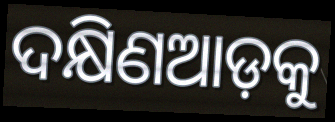
ଦକ୍ଷିଣଆଡ଼କୁ